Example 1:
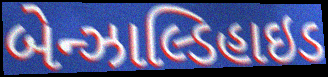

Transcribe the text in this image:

બેન્ઝાલ્ડિહાઇડ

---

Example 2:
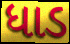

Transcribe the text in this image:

ધાડ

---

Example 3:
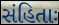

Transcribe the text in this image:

સંહિતાઃ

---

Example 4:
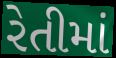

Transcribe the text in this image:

રેતીમાં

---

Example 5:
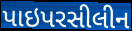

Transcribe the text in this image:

પાઇપરસીલીન